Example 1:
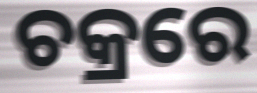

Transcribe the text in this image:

ଚକ୍ରରେ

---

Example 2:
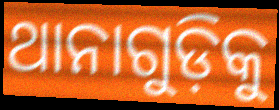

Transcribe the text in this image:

ଥାନାଗୁଡ଼ିକୁ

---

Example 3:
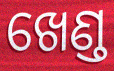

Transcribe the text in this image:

ଖେଣ୍ଡ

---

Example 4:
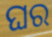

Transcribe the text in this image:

ଘର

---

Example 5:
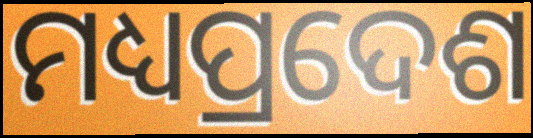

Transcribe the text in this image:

ମଧ୍ୟପ୍ରଦେଶ